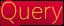
Query